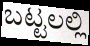
ಬಟ್ಟಲಲ್ಲಿ